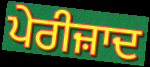
ਪੇਰੀਜ਼ਾਦ